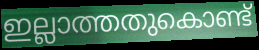
ഇല്ലാത്തതുകൊണ്ട്